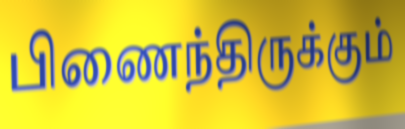
பிணைந்திருக்கும்